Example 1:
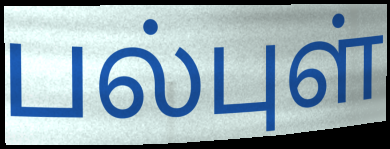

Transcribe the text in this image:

பல்புள்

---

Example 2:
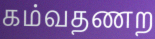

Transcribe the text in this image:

கம்வதணற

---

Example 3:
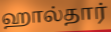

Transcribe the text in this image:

ஹால்தார்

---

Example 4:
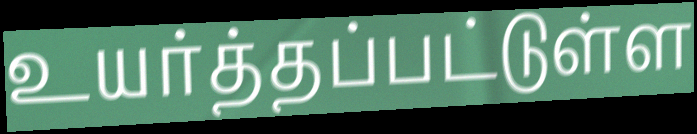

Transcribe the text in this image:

உயர்த்தப்பட்டுள்ள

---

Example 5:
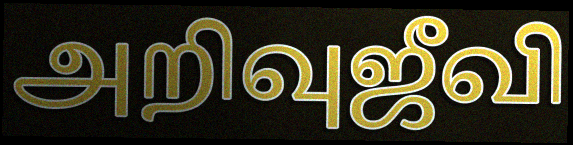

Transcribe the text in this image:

அறிவுஜீவி